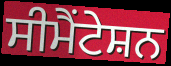
ਸੀਮੈਂਟੇਸ਼ਨ